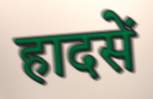
हादसें